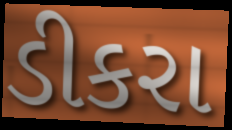
ડીકરા